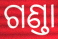
ଗଣ୍ଡା